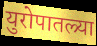
युरोपातल्या